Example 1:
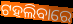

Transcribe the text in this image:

ଟହଲିବାରେ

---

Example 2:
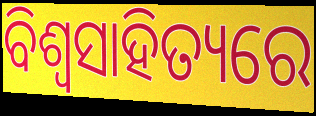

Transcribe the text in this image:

ବିଶ୍ବସାହିତ୍ୟରେ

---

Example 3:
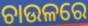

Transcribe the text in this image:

ଚାଉଳରେ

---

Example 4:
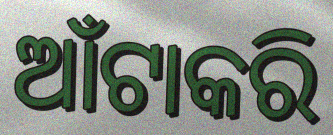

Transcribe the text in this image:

ଆଁଟାକରି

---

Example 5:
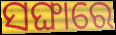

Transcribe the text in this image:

ସଙ୍ଘାରେ